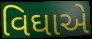
વિઘાએ